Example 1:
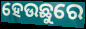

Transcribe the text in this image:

ହେଉଛୁରେ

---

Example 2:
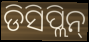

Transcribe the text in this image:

ଡିସିପ୍ଲିନ୍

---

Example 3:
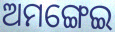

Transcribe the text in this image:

ଅମଙ୍ଗେଇ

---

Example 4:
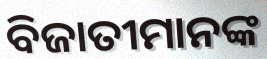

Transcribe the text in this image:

ବିଜାତୀମାନଙ୍କ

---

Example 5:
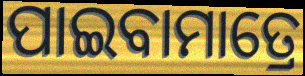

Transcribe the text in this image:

ପାଇବାମାତ୍ରେ